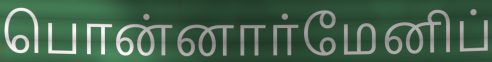
பொன்னார்மேனிப்